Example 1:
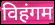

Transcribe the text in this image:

विहंगम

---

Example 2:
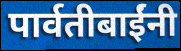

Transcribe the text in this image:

पार्वतीबाईंनी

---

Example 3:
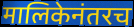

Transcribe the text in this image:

मालिकेनंतरच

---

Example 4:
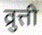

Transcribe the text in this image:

व्रुत्ती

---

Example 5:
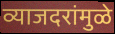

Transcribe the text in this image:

व्याजदरांमुळे